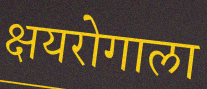
क्षयरोगाला